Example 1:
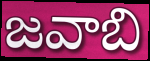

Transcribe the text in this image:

జవాబి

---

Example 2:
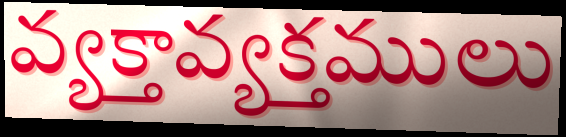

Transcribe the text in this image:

వ్యక్తావ్యక్తములు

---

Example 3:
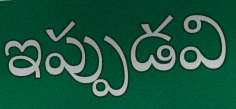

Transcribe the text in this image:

ఇప్పుడవి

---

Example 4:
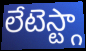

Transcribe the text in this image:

లేటెస్ట్గా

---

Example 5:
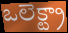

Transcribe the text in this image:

ఒలెక్ట్రా